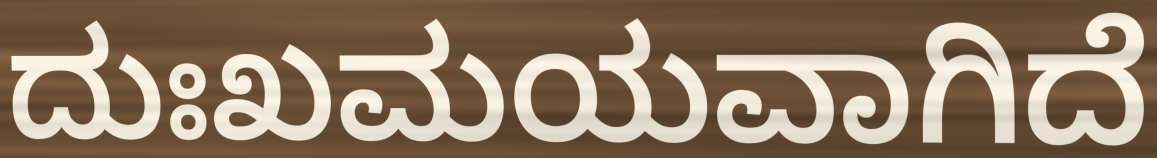
ದುಃಖಮಯವಾಗಿದೆ